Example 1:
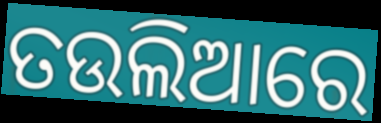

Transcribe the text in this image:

ତଉଲିଆରେ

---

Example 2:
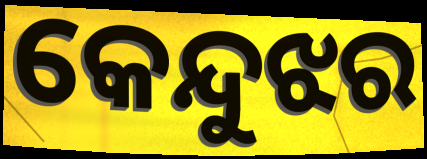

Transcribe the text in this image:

କେନ୍ଦୁଝର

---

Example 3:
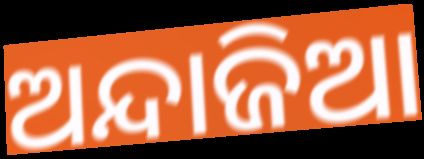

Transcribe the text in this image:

ଅନ୍ଦାଜିଆ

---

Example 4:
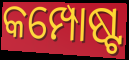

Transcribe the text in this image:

କମ୍ପୋଷ୍ଟ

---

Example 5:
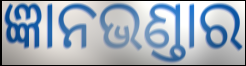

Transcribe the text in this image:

ଜ୍ଞାନଭଣ୍ଡାର